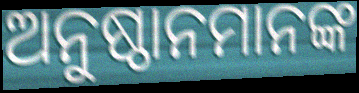
ଅନୁଷ୍ଠାନମାନଙ୍କ